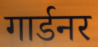
गार्डनर